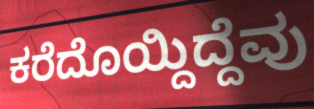
ಕರೆದೊಯ್ದಿದ್ದೆವು